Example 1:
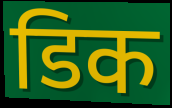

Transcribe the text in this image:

डिक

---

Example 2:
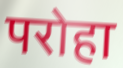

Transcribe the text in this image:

परोहा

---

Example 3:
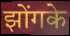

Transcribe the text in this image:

झोंगके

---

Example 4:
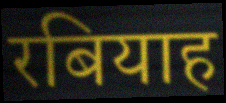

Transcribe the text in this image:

रबियाह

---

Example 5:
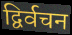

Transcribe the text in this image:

द्विर्वचन